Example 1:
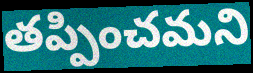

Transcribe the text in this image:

తప్పించమని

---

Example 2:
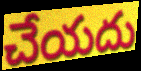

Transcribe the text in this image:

చేయదు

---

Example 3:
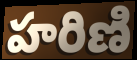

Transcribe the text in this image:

హరిణి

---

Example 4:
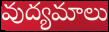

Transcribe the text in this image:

వుద్యమాలు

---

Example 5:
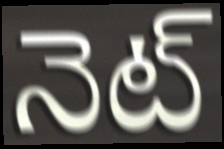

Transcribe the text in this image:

నెట్